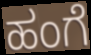
ಹಂಗೆ